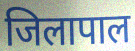
जिलापाल